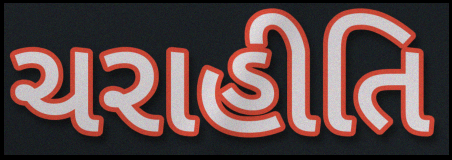
ચરાહીતિ